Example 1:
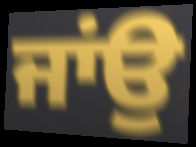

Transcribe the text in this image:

ਜਾਂਉ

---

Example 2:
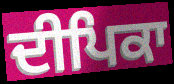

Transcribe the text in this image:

ਦੀਪਿਕਾ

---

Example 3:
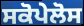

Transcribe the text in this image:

ਸਕੋਪੇਲੋਸ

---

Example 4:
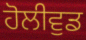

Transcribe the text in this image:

ਹੋਲੀਵੁਡ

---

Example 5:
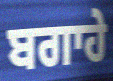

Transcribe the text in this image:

ਬਗਾਹੇ